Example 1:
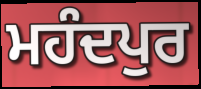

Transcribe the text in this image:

ਮਹੰਦਪੁਰ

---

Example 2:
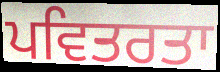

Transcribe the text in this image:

ਪਵਿਤਰਤਾ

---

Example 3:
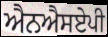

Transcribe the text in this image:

ਐਨਐਸਏਪੀ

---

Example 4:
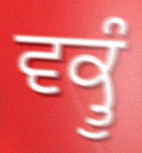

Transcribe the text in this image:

ਵਕ੍ਤੁੰ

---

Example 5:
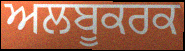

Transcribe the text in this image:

ਅਲਬੂਕਰਕ